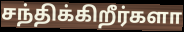
சந்திக்கிறீர்களா